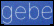
gebe